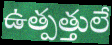
ఉత్పత్తులే